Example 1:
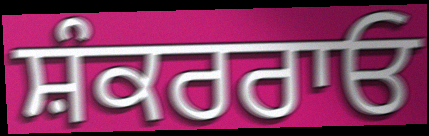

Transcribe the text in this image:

ਸ਼ੰਕਰਰਾਓ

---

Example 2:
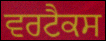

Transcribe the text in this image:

ਵਰਟੈਕਸ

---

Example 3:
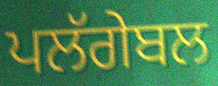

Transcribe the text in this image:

ਪਲੱਗੇਬਲ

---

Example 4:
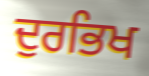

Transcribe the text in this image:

ਦੁਰਭਿਖ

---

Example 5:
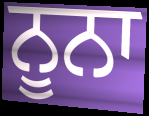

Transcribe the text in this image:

ਨੂਨਾ